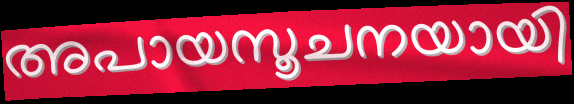
അപായസൂചനയായി